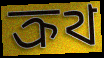
ক্রথ